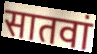
सातवां